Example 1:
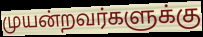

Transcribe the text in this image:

முயன்றவர்களுக்கு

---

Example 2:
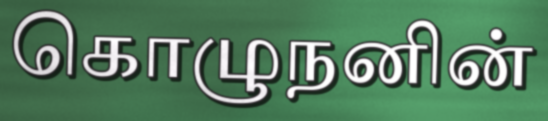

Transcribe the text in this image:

கொழுநனின்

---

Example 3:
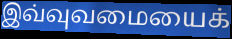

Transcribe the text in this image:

இவ்வுவமையைக்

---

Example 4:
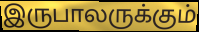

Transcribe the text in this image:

இருபாலருக்கும்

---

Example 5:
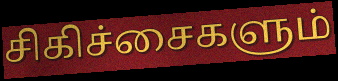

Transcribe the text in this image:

சிகிச்சைகளும்